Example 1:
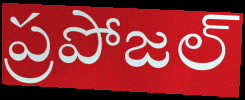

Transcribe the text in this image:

ప్రపోజల్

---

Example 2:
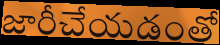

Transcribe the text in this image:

జారీచేయడంతో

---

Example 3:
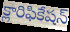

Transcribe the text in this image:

క్లారిఫికేషన్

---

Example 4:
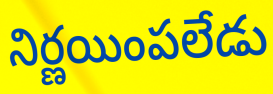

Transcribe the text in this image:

నిర్ణయింపలేడు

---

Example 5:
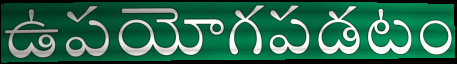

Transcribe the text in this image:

ఉపయోగపడటం